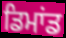
ਡਿਮਾਂਡ